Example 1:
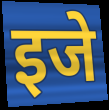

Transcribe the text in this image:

इजे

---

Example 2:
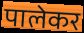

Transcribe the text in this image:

पालेकर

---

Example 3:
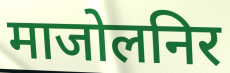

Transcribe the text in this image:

माजोलनिर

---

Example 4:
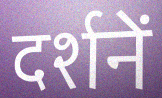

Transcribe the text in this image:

दर्शनें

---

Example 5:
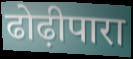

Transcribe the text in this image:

ढोढ़ीपारा